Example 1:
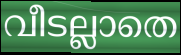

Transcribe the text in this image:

വീടല്ലാതെ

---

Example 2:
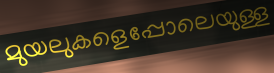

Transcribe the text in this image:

മുയലുകളെപ്പോലെയുള്ള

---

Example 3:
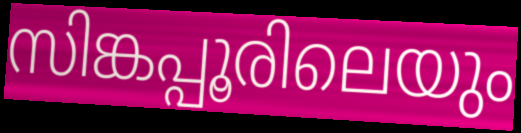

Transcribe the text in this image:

സിങ്കപ്പൂരിലെയും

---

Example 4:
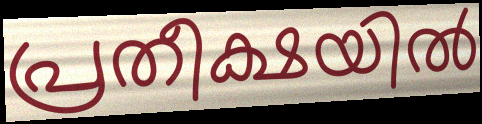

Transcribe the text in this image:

പ്രതീക്ഷയിൽ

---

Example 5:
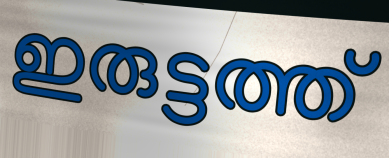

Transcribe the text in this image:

ഇരുട്ടത്ത്